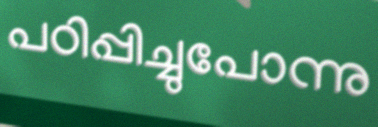
പഠിപ്പിച്ചുപോന്നു